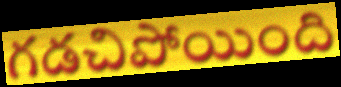
గడచిపోయింది